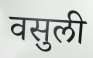
वसुली